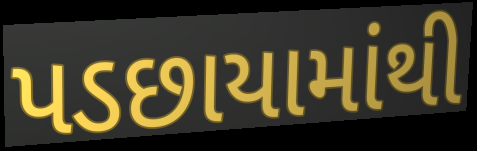
પડછાયામાંથી